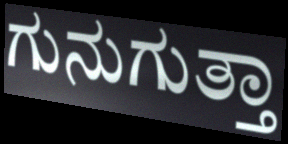
ಗುನುಗುತ್ತಾ